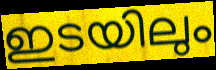
ഇടയിലും